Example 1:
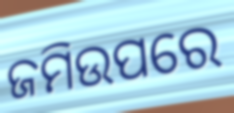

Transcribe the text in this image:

ଜମିଉପରେ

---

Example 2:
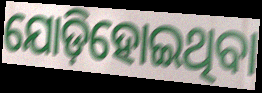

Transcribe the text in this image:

ଯୋଡ଼ିହୋଇଥିବା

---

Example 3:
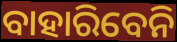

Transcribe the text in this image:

ବାହାରିବେନି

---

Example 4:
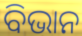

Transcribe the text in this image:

ବିଭାନ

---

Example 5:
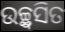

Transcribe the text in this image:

ଉଚ୍ଛ୍ୱସିତ